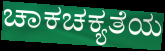
ಚಾಕಚಕ್ಯತೆಯ